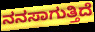
ನನಸಾಗುತ್ತಿದೆ